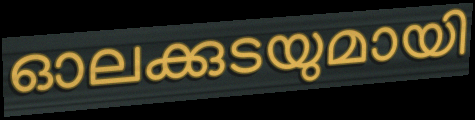
ഓലക്കുടയുമായി